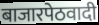
बाजारपेठवादी